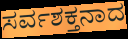
ಸರ್ವಶಕ್ತನಾದ